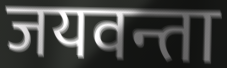
जयवन्ता